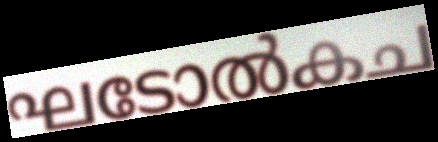
ഘടോൽകച